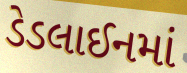
ડેડલાઈનમાં